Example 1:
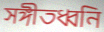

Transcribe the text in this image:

সঙ্গীতধ্বনি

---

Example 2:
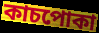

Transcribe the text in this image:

কাচপোকা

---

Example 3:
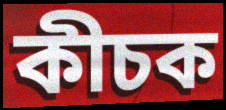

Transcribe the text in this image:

কীচক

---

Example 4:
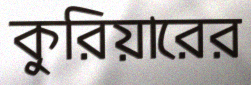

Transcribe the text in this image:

কুরিয়ারের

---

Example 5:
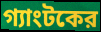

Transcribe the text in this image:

গ্যাংটকের